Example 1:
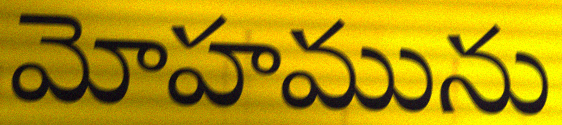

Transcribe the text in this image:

మోహమును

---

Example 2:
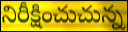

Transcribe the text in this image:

నిరీక్షించుచున్న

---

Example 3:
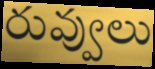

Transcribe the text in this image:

రువ్వులు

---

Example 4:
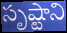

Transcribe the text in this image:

సృష్టాని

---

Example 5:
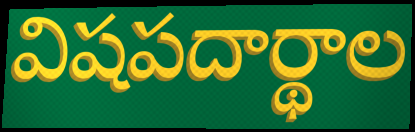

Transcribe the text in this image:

విషపదార్థాల